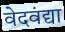
वेदवंद्या